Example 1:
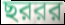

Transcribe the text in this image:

ছররর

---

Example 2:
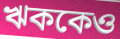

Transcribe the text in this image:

ঋককেও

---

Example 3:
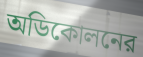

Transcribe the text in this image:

অডিকোলনের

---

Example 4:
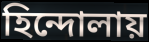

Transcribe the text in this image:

হিন্দোলায়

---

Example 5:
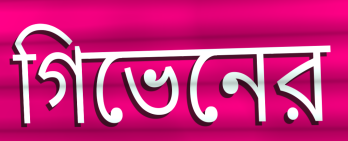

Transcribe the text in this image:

গিভেনের